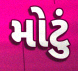
મોટું